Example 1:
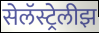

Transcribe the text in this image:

सेलॅस्ट्रेलीझ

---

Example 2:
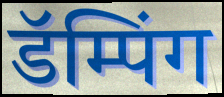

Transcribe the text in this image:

डॅम्पिंग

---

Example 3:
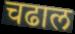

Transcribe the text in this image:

चढाल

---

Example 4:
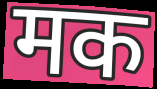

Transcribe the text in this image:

मक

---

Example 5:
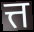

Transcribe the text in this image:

त्त